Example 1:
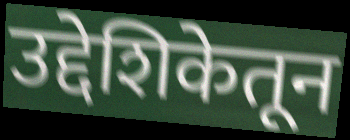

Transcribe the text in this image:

उद्देशिकेतून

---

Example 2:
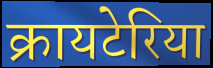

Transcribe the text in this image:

क्रायटेरिया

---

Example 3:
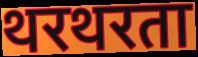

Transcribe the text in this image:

थरथरता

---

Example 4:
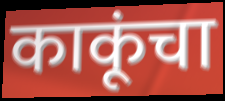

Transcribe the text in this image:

काकूंचा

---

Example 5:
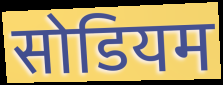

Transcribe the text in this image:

सोडियम